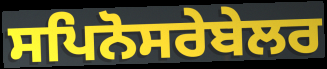
ਸਪਿਨੋਸਰੇਬੇਲਰ